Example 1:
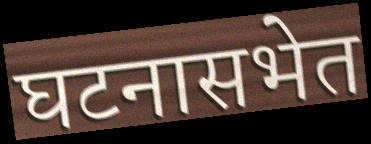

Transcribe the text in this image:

घटनासभेत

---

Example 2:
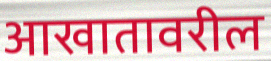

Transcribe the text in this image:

आखातावरील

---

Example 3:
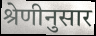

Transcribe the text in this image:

श्रेणीनुसार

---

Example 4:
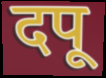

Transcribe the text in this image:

दपू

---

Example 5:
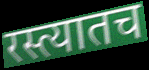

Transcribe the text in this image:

रस्त्यातच